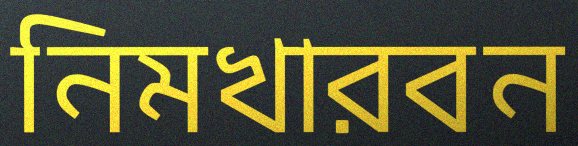
নিমখারবন